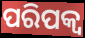
ପରିପକ୍ବ